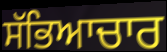
ਸੱਭਿਆਚਾਰ